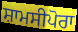
ਸ਼ਾਮਸੀਪੋਰਾ